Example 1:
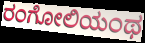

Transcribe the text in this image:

ರಂಗೋಲಿಯಂಥ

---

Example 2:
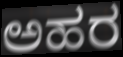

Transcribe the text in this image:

ಅಹರ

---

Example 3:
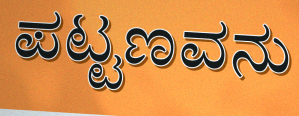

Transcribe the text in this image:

ಪಟ್ಟಣವನು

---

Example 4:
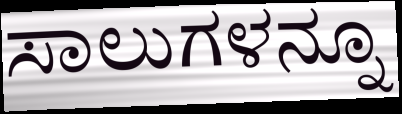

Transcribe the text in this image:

ಸಾಲುಗಳನ್ನೂ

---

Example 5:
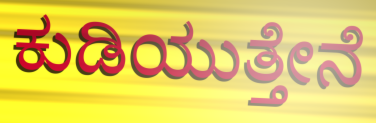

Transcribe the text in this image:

ಕುಡಿಯುತ್ತೇನೆ